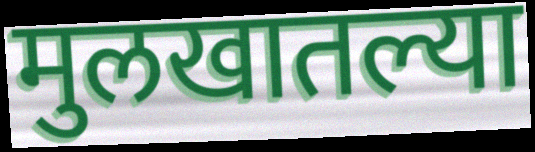
मुलखातल्या